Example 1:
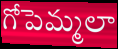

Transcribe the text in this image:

గోపెమ్మలా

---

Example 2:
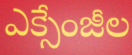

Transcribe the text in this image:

ఎక్సేంజీల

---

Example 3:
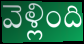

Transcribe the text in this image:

వెళ్లింది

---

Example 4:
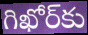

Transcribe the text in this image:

గిఖోర్‌కు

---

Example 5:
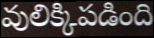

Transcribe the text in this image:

వులిక్కిపడింది